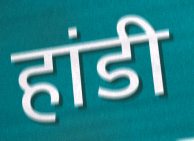
हांडी